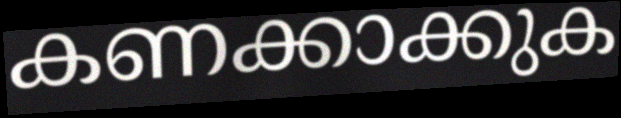
കണക്കാക്കുക